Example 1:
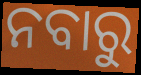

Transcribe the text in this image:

ନବାରୁ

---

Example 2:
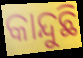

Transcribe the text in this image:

କାନ୍ଦୁଛି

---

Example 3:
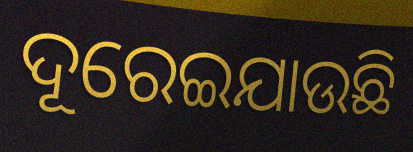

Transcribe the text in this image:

ଦୂରେଇଯାଉଛି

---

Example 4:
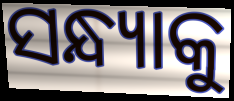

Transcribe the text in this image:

ସନ୍ଧ୍ୟାକୁ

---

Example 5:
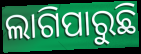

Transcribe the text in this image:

ଲାଗିପାରୁଛି